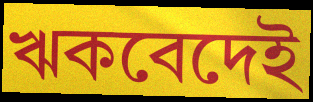
ঋকবেদেই